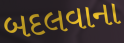
બદલવાના